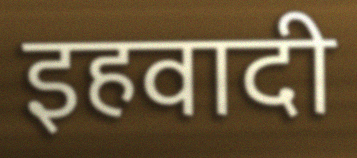
इहवादी